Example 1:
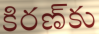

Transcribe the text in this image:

కిరణ్‌కు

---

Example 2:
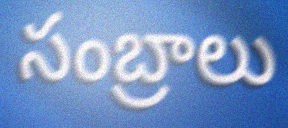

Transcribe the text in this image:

సంబ్రాలు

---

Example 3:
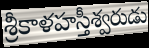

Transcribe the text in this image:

శ్రీకాళహస్తీశ్వరుడు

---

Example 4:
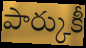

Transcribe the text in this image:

పార్కుకీ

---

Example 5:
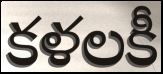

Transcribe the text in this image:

కళలకీ